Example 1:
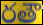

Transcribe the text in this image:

రతౌ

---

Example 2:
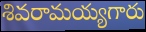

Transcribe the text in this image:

శివరామయ్యగారు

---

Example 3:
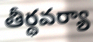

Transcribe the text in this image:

తీర్థవర్యా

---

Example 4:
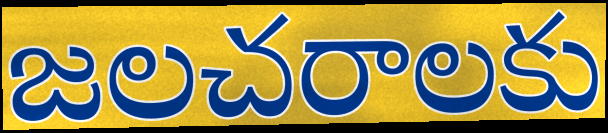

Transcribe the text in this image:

జలచరాలకు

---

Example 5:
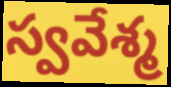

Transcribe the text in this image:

స్వవేశ్మ